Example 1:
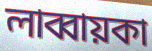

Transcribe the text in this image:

লাব্বায়কা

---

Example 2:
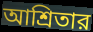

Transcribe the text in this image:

আশ্রিতার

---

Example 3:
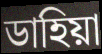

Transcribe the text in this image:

ডাহিয়া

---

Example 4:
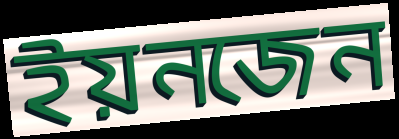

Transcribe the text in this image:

ইয়নজেন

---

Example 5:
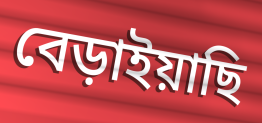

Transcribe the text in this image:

বেড়াইয়াছি